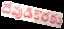
దేవుడికొరకు